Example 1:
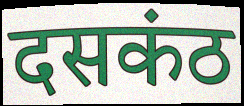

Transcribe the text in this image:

दसकंठ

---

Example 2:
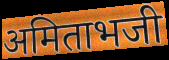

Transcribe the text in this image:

अमिताभजी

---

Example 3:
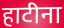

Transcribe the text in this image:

हाटीना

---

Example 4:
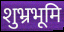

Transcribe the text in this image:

शुभ्रभूमि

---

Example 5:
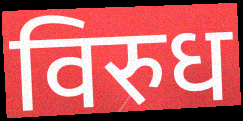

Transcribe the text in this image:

विरुध